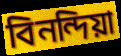
বিনন্দিয়া